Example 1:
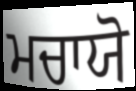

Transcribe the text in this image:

ਮਚਾਯੋ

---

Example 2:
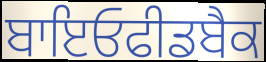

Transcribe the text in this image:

ਬਾਇਓਫੀਡਬੈਕ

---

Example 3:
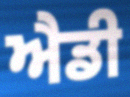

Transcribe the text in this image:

ਐਡੀ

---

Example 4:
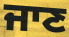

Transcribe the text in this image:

ਜਾਣ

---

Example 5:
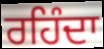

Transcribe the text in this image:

ਰਹਿੰਦਾ